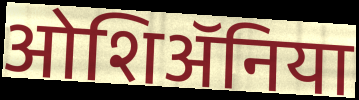
ओशिॲनिया